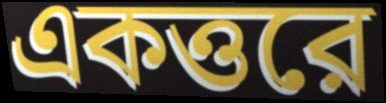
একত্তরে